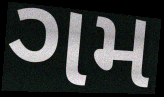
ગમ